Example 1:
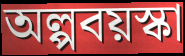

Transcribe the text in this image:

অল্পবয়স্কা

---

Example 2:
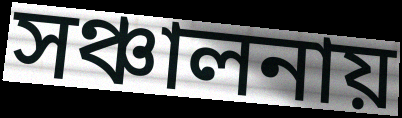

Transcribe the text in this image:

সঞ্চালনায়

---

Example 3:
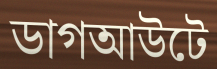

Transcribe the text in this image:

ডাগআউটে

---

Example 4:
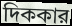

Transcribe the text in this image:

দিককার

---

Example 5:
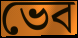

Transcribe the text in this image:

ভেব